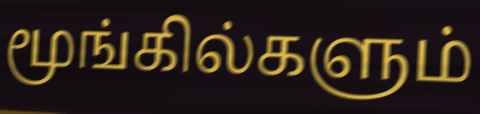
மூங்கில்களும்